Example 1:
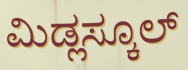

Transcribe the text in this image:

ಮಿಡ್ಲಸ್ಕೂಲ್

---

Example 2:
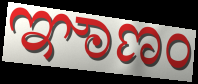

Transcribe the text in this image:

ಞಾಣಂ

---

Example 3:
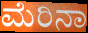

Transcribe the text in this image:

ಮೆರಿನಾ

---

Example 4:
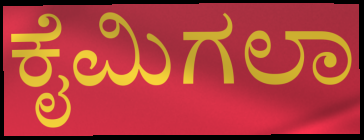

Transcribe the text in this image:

ಕೈಮಿಗಲಾ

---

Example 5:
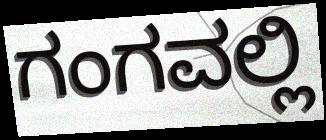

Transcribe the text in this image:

ಗಂಗವಲ್ಲಿ